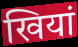
खियां